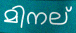
മിനല്